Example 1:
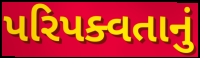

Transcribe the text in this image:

પરિપક્વતાનું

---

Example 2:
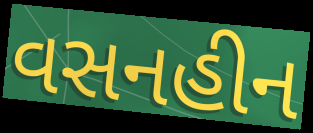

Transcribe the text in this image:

વસનહીન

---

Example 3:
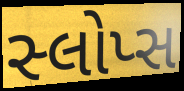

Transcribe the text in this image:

સ્લોપ્સ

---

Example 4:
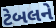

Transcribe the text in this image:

ટેબલને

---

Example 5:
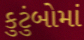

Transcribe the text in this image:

કુટુંબોમાં